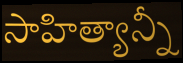
సాహిత్యాన్నీ